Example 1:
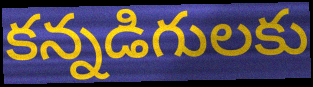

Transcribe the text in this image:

కన్నడిగులకు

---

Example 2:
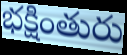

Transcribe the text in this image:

భక్షింతురు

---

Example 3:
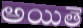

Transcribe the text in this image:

అయితె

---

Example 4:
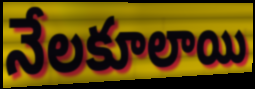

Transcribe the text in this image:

నేలకూలాయి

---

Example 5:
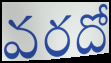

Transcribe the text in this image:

వరదో